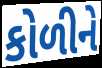
કોળીને